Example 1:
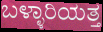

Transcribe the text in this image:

ಬಳ್ಳಾರಿಯತ್ತ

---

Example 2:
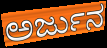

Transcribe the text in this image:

ಅರ್ಜುನ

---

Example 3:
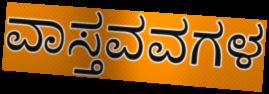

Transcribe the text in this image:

ವಾಸ್ತವವಗಳ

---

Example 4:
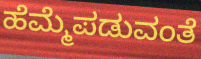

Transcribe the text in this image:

ಹೆಮ್ಮೆಪಡುವಂತೆ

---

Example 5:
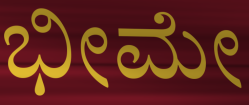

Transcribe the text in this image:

ಭೀಮೇ